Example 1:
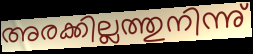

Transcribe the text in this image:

അരക്കില്ലത്തുനിന്നു്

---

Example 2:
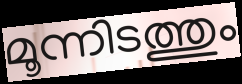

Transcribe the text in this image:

മൂന്നിടത്തും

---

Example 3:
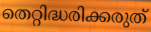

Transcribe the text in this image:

തെറ്റിദ്ധരിക്കരുത്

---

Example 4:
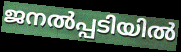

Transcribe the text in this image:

ജനൽപ്പടിയിൽ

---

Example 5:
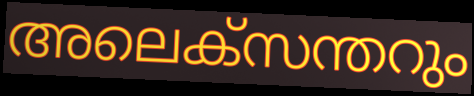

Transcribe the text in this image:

അലെക്സന്തറും